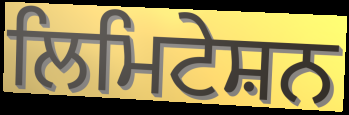
ਲਿਮਿਟੇਸ਼ਨ